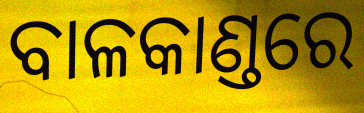
ବାଳକାଣ୍ଡରେ